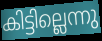
കിട്ടില്ലെന്നു